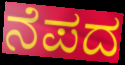
ನೆಪದ